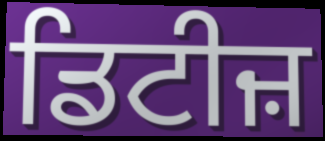
ਡਿਟੀਜ਼